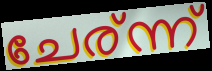
ചേര്ന്ന്